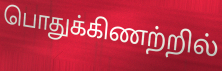
பொதுக்கிணற்றில்